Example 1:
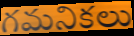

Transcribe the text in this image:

గమనికలు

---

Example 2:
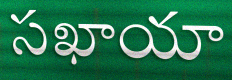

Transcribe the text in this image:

సఖాయా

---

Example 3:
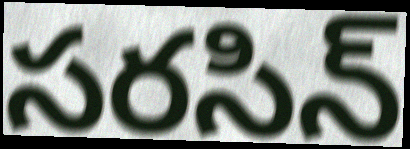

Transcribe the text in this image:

సరసిన్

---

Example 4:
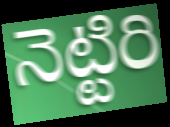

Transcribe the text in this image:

నెట్టిరి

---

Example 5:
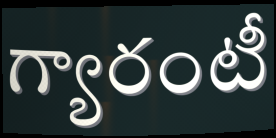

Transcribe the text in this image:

గ్యారంటీ